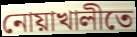
নোয়াখালীতে